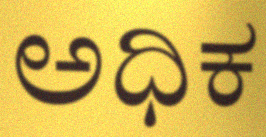
ಅಧಿಕ